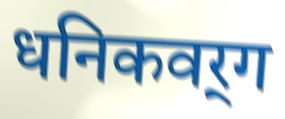
धनिकवर्ग